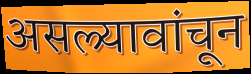
असल्यावांचून